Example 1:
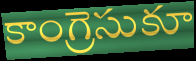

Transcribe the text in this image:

కాంగ్రెసుకూ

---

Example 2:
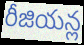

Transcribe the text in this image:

రీజియన్ల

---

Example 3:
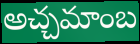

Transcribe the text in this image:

అచ్చమాంబ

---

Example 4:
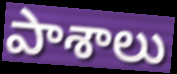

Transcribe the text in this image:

పాశాలు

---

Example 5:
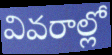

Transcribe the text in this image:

వివరాల్లో